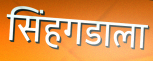
सिंहगडाला